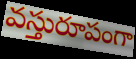
వస్తురూపంగా